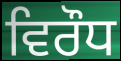
ਵਿਰੌਧ